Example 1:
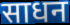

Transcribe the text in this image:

साधन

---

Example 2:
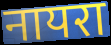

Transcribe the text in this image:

नायरा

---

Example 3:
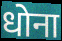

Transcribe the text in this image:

धोना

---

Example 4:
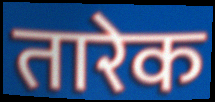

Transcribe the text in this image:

तारेक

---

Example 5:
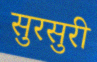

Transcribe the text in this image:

सुरसुरी